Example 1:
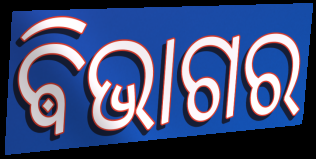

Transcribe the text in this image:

ଵିଭାଗର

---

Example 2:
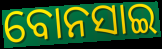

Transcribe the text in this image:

ବୋନସାଇ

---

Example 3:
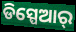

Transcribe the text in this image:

ଡିସ୍ପେଆର୍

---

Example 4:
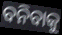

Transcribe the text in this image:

ବନିବାକୁ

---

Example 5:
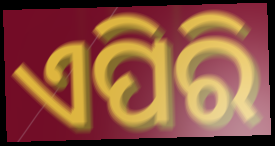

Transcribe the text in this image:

ଏପିରି